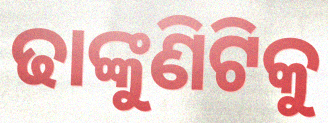
ଢାଙ୍କୁଣିଟିକୁ